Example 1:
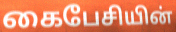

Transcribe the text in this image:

கைபேசியின்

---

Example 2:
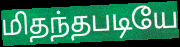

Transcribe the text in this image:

மிதந்தபடியே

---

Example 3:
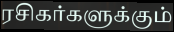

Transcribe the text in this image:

ரசிகர்களுக்கும்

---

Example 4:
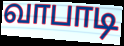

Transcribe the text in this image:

வாபாடி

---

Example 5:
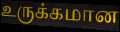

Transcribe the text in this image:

உருக்கமான